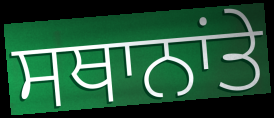
ਸਥਾਨਾਂਤੇ